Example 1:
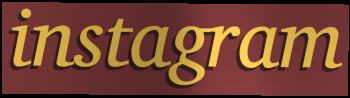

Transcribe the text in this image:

instagram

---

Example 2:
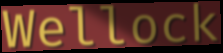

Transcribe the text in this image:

Wellock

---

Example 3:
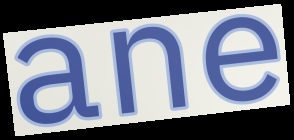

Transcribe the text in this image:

ane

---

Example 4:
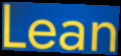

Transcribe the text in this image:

Lean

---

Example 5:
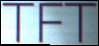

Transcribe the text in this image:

TFT